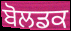
ਬੋਲਡਕ